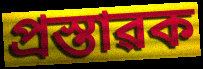
প্ৰস্তাৱক